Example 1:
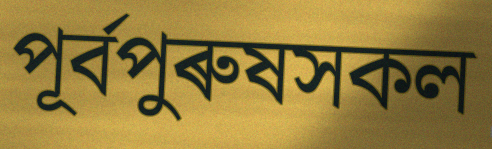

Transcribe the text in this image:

পূৰ্বপুৰুষসকল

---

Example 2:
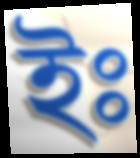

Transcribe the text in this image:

ইঃ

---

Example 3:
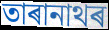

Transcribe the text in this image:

তাৰানাথৰ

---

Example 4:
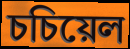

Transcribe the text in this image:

চচিয়েল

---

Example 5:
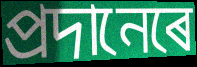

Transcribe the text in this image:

প্ৰদানেৰে